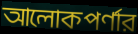
আলোকপর্ণার